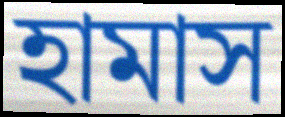
হামাস